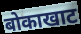
बोकाखाट